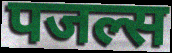
पजल्स